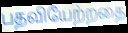
பதவியேற்றதை